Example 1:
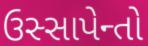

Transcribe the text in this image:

ઉસ્સાપેન્તો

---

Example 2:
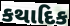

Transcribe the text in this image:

કથાદિક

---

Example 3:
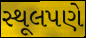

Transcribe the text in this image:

સ્થૂલપણે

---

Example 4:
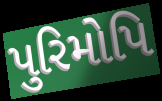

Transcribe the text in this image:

પુરિમોપિ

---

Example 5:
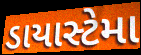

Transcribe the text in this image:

ડાયાસ્ટેમા